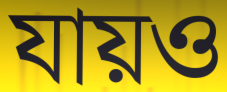
যায়ও